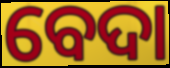
ବେଦା